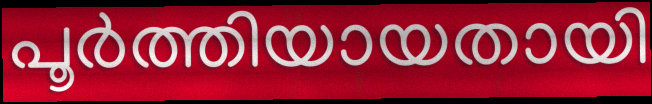
പൂർത്തിയായതായി